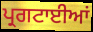
ਪ੍ਰਗਟਾਈਆਂ